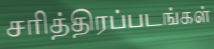
சரித்திரப்படங்கள்